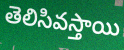
తెలిసివస్తాయి